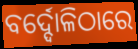
ବର୍ଦ୍ଦୋଳିଠାରେ